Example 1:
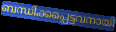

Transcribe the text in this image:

ബന്ധിക്കപ്പെട്ടവനായി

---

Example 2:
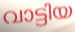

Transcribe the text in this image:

വാട്ടിയ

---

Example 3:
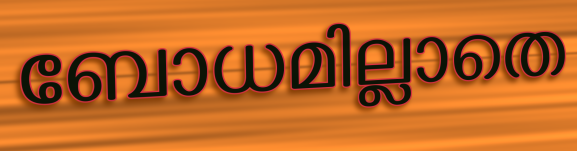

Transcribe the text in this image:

ബോധമില്ലാതെ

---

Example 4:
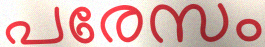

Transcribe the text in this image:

പരേസം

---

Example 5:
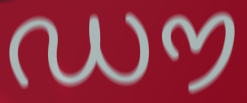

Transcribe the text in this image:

ഡൗ